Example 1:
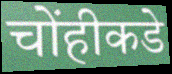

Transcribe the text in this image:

चोंहीकडे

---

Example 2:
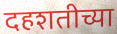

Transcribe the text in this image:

दहशतीच्या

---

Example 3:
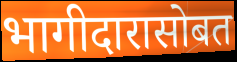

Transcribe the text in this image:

भागीदारासोबत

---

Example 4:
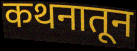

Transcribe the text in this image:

कथनातून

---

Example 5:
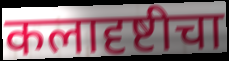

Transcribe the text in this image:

कलादृष्टीचा